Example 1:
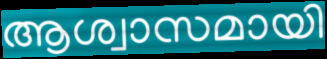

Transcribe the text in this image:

ആശ്വാസമായി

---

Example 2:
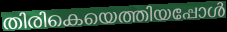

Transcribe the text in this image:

തിരികെയെത്തിയപ്പോൾ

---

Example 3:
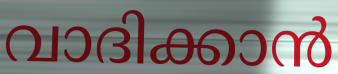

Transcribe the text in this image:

വാദിക്കാൻ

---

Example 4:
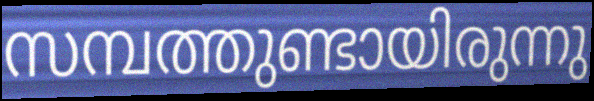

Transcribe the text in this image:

സമ്പത്തുണ്ടായിരുന്നു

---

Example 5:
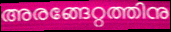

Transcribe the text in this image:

അരങ്ങേറ്റത്തിനു